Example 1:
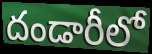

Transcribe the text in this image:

దండారీలో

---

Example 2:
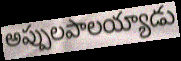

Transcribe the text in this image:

అప్పులపాలయ్యాడు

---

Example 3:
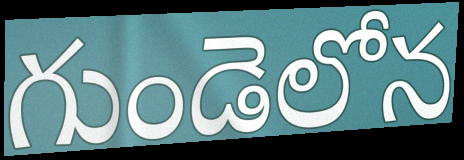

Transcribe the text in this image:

గుండెలోన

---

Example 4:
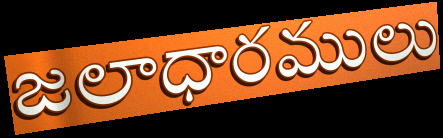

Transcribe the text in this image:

జలాధారములు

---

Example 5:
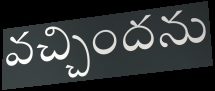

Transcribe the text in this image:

వచ్చిందను